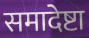
समादेष्टा